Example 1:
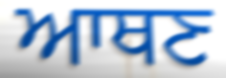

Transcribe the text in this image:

ਆਥਣ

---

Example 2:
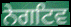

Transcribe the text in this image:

ਨੇਗਟਿਵ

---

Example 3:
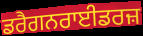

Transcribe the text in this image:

ਡਰੈਗਨਰਾਈਡਰਜ਼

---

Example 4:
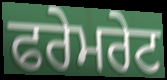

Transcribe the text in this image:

ਫਰੇਮਰੇਟ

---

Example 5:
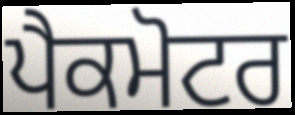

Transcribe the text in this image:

ਪੈਕਮੋਟਰ